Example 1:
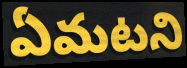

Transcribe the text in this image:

ఏమటని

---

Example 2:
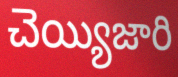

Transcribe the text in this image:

చెయ్యిజారి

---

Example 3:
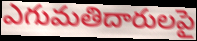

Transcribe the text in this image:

ఎగుమతిదారులపై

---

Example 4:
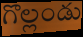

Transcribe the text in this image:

గొల్లండు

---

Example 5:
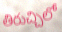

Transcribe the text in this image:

తిరుచ్చిలో